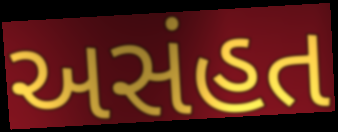
અસંહત